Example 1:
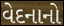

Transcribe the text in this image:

વેદનાનો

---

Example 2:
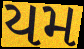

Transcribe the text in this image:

યમ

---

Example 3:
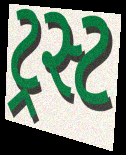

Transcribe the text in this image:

ટ્રસ્ટ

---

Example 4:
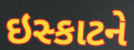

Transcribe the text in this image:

ઇસ્કાટને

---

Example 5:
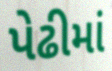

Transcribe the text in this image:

પેઢીમાં